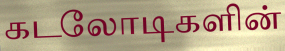
கடலோடிகளின்